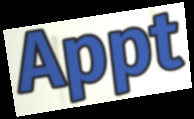
Appt